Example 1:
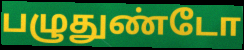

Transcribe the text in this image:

பழுதுண்டோ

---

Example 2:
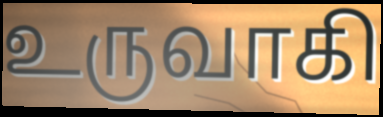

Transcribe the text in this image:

உருவாகி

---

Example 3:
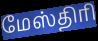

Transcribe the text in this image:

மேஸ்திரி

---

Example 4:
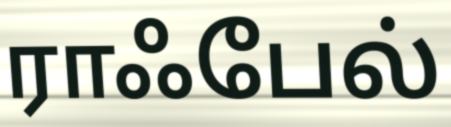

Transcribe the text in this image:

ராஃபேல்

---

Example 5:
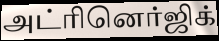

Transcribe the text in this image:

அட்ரினெர்ஜிக்